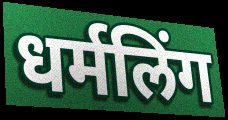
धर्मलिंग